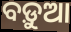
ବଡ଼ୁଆ